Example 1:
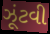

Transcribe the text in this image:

ઝૂંટવી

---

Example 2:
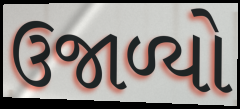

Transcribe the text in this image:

ઉજાળ્યો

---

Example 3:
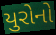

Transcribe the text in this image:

યુરોનો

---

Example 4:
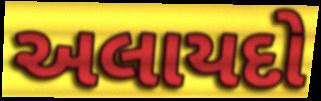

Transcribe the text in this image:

અલાયદો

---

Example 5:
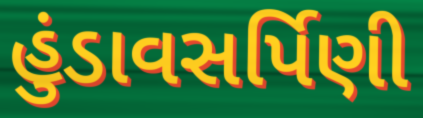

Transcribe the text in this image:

હુંડાવસર્પિણી